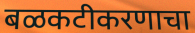
बळकटीकरणाचा